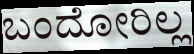
ಬಂದೋರಿಲ್ಲ